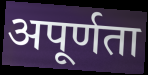
अपूर्णता